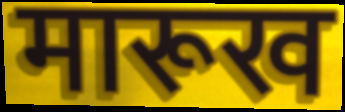
मारूख